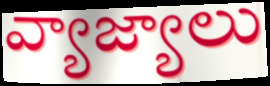
వ్యాజ్యాలు